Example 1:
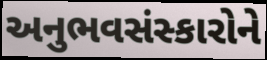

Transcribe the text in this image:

અનુભવસંસ્કારોને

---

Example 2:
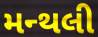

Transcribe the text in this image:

મન્થલી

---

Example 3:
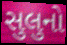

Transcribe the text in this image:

સુલુનો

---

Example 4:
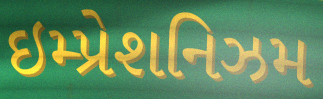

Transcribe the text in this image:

ઇમ્પ્રેશનિઝમ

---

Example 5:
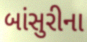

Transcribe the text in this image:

બાંસુરીના